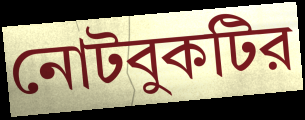
নোটবুকটির